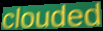
clouded